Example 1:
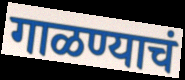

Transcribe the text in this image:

गाळण्याचं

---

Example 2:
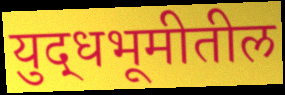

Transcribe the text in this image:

युद्धभूमीतील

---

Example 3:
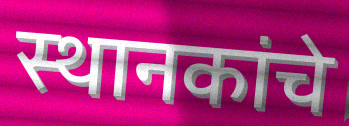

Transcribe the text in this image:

स्थानकांचे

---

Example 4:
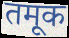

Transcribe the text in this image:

तमूक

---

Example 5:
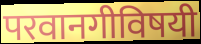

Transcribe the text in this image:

परवानगीविषयी